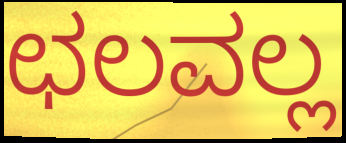
ಛಲವಲ್ಲ